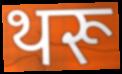
थरू